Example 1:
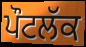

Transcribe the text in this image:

ਪੌਟਲੱਕ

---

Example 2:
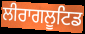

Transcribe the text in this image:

ਲੀਰਾਗਲੂਟਿਡ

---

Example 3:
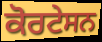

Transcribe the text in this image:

ਕੋਰਟੇਸਨ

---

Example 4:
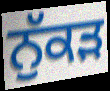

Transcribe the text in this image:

ਨੁੱਕਡ਼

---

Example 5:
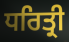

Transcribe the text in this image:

ਧਰਿਤ੍ਰੀ